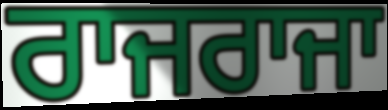
ਰਾਜਰਾਜਾ